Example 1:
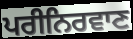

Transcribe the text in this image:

ਪਰੀਨਿਰਵਾਣ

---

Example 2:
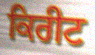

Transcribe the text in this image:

ਕਿਰੀਟ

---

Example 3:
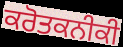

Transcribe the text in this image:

ਕਰੋਤਕਨੀਕੀ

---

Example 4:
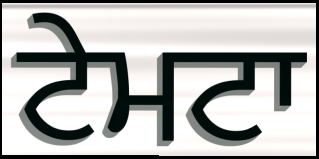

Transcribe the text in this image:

ਟੇਮਟਾ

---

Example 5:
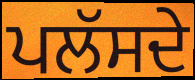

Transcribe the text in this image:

ਪਲੱਸਦੇ